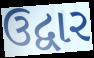
ઉદ્વાર